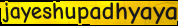
jayeshupadhyaya